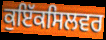
ਕੁਇੱਕਸਿਲਵਰ